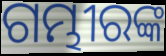
ଗମ୍ଭୀରଙ୍କ